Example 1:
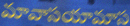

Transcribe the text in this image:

మావాసయామాస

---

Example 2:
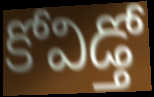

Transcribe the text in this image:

కోవిడ్తో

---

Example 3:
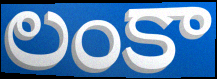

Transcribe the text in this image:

లంకా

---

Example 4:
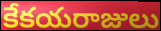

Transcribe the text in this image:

కేకయరాజులు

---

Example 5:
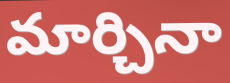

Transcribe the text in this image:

మార్చినా